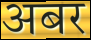
अबर